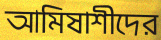
আমিষাশীদের